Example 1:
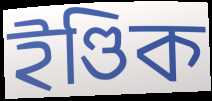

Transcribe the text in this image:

ইণ্ডিক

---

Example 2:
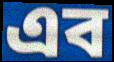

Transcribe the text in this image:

এব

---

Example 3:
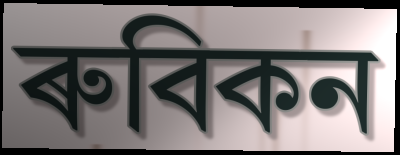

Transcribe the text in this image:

ৰুবিকন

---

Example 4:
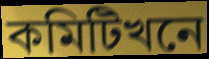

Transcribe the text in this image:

কমিটিখনে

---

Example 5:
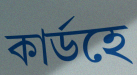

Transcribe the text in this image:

কাৰ্ডহে